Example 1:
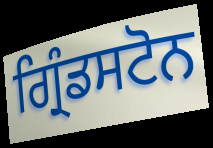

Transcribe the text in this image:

ਗ੍ਰਿੰਡਸਟੋਨ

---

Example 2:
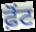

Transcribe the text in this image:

ਫ਼ੋਂਟ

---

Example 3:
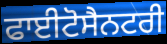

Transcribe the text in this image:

ਫਾਈਟੋਸੈਨਟਰੀ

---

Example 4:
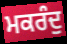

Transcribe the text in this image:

ਮਕਰੰਦੁ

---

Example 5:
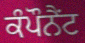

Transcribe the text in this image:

ਕੰਪੌਨੈਂਟ